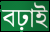
বঢ়াই